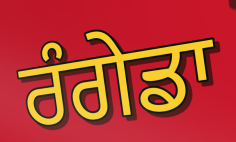
ਰੰਗੇਡਾ